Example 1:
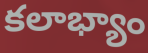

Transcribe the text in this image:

కలాభ్యాం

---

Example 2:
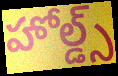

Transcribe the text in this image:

హోల్డ్స్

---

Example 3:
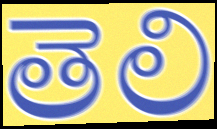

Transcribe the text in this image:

తెలి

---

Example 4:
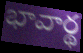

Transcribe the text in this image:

భావార్థ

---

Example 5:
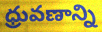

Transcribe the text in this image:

ధ్రువణాన్ని